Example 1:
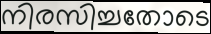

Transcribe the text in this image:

നിരസിച്ചതോടെ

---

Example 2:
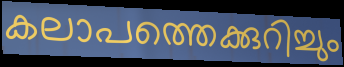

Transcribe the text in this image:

കലാപത്തെക്കുറിച്ചും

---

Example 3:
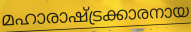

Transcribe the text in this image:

മഹാരാഷ്ട്രക്കാരനായ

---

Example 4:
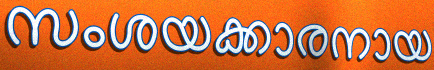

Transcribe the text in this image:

സംശയക്കാരനായ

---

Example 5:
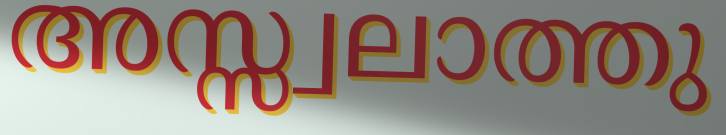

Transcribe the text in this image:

അസ്സ്വലാത്തു